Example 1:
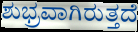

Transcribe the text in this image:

ಶುಭ್ರವಾಗಿರುತ್ತದೆ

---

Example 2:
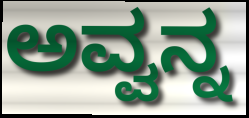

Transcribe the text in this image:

ಅವ್ವನ್ನ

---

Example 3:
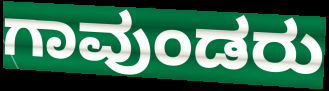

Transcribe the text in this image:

ಗಾವುಂಡರು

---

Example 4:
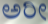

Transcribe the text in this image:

ಅರೀ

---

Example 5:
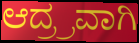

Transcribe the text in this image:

ಆದ್ರ್ರವಾಗಿ